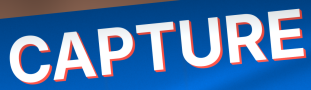
CAPTURE